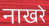
नाखरे